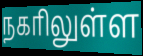
நகரிலுள்ள